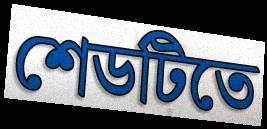
শেডটিতে